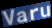
Varu